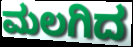
ಮಲಗಿದ